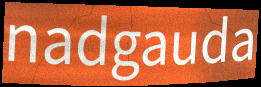
nadgauda